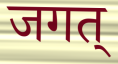
जगत्